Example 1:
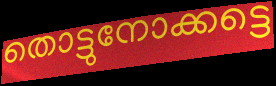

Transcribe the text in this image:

തൊട്ടുനോക്കട്ടെ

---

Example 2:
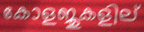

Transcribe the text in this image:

കോളജുകളില്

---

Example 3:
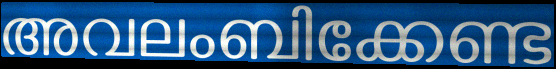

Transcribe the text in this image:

അവലംബിക്കേണ്ട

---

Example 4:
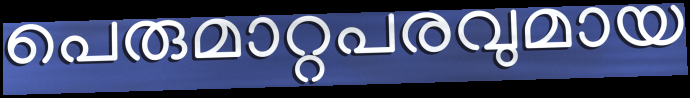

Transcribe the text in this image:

പെരുമാറ്റപരവുമായ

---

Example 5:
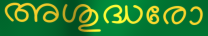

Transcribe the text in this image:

അശുദ്ധരോ